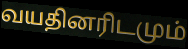
வயதினரிடமும்